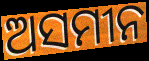
ଅସମୀନ